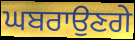
ਘਬਰਾਉਣਗੇ